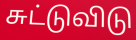
சுட்டுவிடு